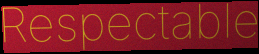
Respectable